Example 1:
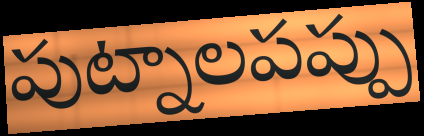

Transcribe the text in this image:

పుట్నాలపప్పు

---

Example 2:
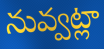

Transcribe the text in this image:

నువ్వట్లా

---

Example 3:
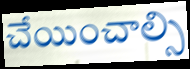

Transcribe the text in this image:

చేయించాల్సి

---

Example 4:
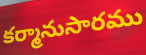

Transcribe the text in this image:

కర్మానుసారము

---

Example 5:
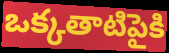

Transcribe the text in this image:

ఒక్కతాటిపైకి